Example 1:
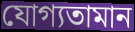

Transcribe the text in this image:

যোগ্যতামান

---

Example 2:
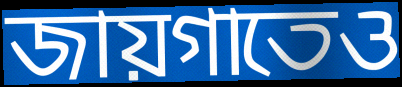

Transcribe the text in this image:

জায়গাতেও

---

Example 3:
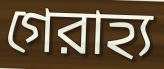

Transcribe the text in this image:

গেরাহ্য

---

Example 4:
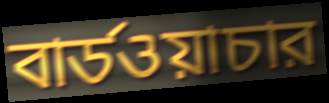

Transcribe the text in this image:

বার্ডওয়াচার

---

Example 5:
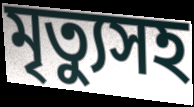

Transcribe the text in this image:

মৃত্যুসহ